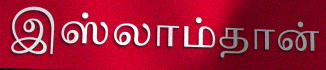
இஸ்லாம்தான்